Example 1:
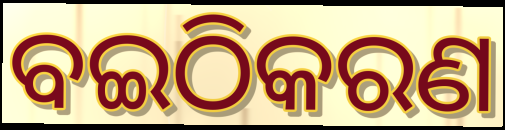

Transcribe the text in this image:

ବଇଠିକରଣ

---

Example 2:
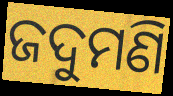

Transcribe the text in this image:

ଜଦୁମଣି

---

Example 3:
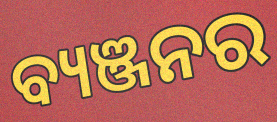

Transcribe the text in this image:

ବ୍ୟଞ୍ଜନର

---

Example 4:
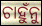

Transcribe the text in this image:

ଚାହୁଁନୁ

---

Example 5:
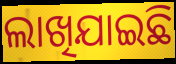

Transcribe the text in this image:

ଲାଖିଯାଇଛି